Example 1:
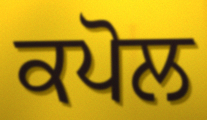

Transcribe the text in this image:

ਕਪੋਲ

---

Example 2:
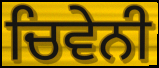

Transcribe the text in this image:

ਚਿਵੇਨੀ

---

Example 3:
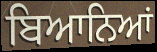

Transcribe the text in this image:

ਬਿਆਨਿਆਂ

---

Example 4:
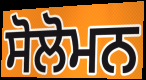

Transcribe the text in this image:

ਸੋਲੋਮਨ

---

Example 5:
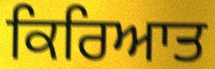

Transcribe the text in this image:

ਕਿਰਿਆਤ